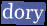
dory